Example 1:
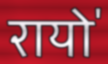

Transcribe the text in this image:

रायो॑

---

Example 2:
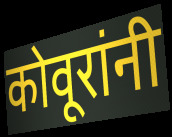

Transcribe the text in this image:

कोवूरांनी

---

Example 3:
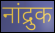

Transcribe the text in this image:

नांद्रुक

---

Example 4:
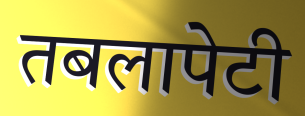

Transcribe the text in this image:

तबलापेटी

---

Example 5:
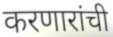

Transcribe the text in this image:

करणारांची